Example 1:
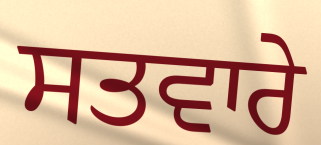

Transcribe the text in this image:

ਸਤਵਾਰੇ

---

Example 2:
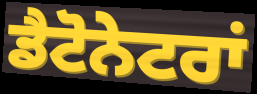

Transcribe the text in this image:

ਡੈਟੋਨੇਟਰਾਂ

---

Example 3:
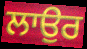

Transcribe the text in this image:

ਲਾਉਰ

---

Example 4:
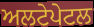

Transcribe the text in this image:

ਅਲਟੇਪੇਟਲ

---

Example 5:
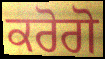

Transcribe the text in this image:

ਕਰੋਗੋ